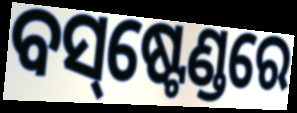
ବସ୍‌ଷ୍ଟେଣ୍ଡରେ